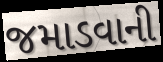
જમાડવાની